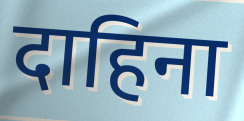
दाहिना